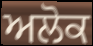
ਅਲੋਕ